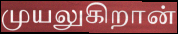
முயலுகிறான்